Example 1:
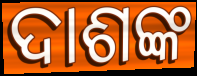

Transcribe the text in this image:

ଦାଶଙ୍କ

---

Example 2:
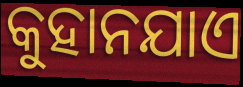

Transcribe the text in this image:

କୁହାନଯାଏ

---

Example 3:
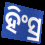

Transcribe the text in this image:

ହିଂସ୍ର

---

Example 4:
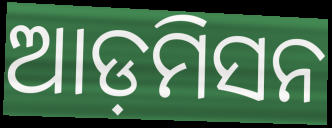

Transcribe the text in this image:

ଆଡ଼ମିସନ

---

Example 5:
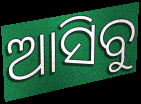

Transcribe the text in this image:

ଆସିବୁ